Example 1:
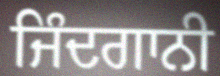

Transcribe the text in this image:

ਜਿੰਦਗਾਨੀ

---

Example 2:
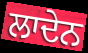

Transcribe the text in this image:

ਲਾਦੇਨ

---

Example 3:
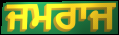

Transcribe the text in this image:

ਜਮਰਾਜ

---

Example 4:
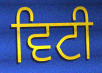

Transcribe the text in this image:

ਵਿਟੀ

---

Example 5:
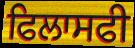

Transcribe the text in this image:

ਫਿਲਾਸਫੀ